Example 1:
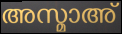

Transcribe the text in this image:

അസ്മാഅ്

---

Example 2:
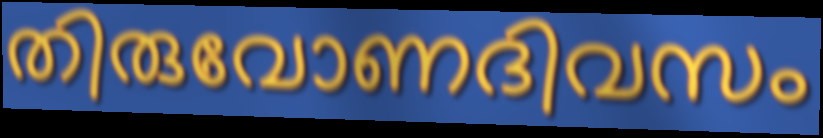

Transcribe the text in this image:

തിരുവോണദിവസം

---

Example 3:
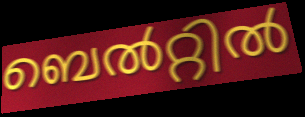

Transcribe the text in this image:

ബെൽറ്റിൽ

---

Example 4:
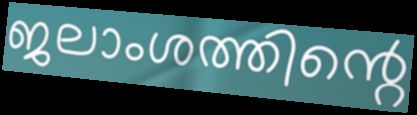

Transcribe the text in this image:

ജലാംശത്തിന്റെ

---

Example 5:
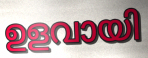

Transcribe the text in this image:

ഉളവായി